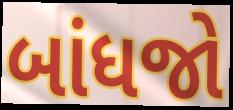
બાંધજો